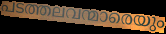
പടത്തലവന്മാരെയും